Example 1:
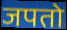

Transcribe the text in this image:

जपतो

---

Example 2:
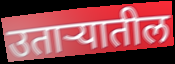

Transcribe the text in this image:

उताऱ्यातील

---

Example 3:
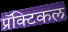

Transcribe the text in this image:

प्रॅक्टिकल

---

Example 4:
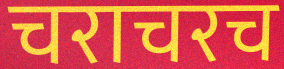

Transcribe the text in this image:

चराचरच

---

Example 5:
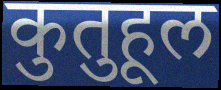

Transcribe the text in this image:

कुतुहूल